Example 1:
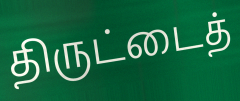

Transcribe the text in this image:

திருட்டைத்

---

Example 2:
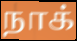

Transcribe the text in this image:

நாக்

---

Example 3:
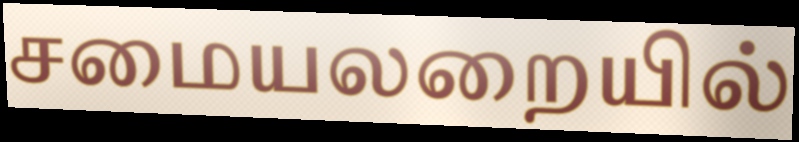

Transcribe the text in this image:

சமையலறையில்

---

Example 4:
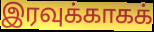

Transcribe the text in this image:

இரவுக்காகக்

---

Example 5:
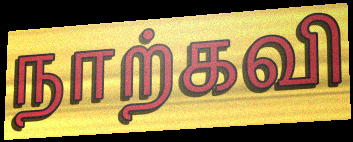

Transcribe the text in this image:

நாற்கவி